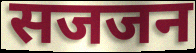
सजजन